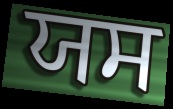
ਯਸ